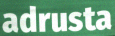
adrusta